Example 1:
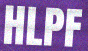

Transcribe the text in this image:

HLPF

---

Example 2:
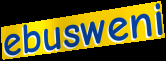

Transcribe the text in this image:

ebusweni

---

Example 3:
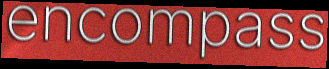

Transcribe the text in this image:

encompass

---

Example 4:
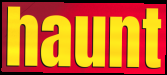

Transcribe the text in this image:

haunt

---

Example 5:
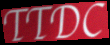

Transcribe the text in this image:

TTDC